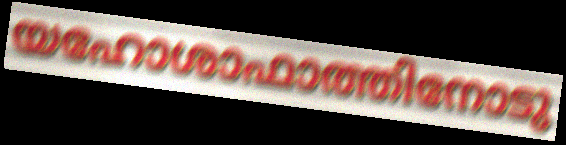
യഹോശാഫാത്തിനോടു